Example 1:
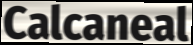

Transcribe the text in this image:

Calcaneal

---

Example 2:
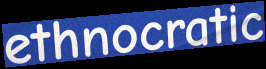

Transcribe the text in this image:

ethnocratic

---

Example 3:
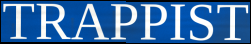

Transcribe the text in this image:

TRAPPIST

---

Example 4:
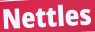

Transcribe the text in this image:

Nettles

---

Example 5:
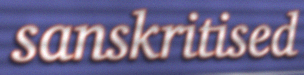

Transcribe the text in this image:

sanskritised